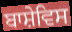
ਬਾਸ਼ੇਵਿਸ